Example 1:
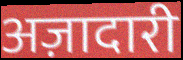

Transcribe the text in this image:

अज़ादारी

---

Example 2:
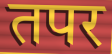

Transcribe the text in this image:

तपर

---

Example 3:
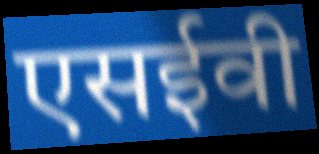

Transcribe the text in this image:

एसईवी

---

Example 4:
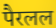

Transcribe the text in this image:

पैरलल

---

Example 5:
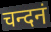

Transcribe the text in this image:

चन्दनं